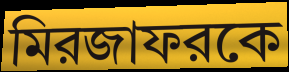
মিরজাফরকে